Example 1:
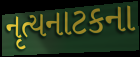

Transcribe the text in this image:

નૃત્યનાટકના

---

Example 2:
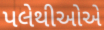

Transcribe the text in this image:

પલેથીઓએ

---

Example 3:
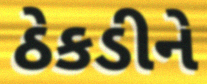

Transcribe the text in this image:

ઠેકડીને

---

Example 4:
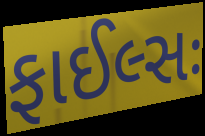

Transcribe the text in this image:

ફાઈલ્સઃ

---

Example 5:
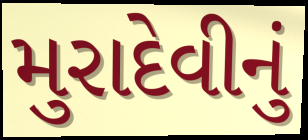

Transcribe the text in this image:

મુરાદેવીનું